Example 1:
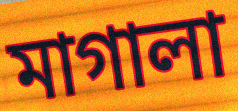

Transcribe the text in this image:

মাগালা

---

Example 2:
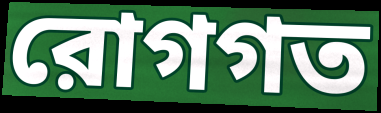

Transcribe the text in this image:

রোগগত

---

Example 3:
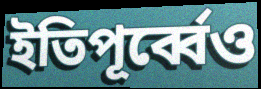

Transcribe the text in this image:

ইতিপূর্ব্বেও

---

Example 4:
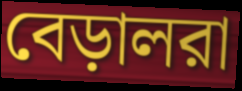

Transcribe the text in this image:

বেড়ালরা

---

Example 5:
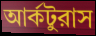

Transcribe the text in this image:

আর্কটুরাস